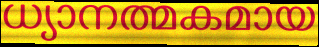
ധ്യാനത്മകമായ